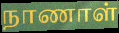
நாணாள்